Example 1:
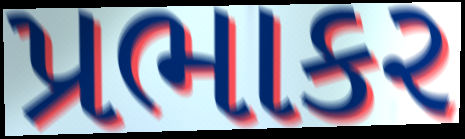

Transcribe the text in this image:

પ્રભાકર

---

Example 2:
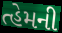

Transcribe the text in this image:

ત્હેમની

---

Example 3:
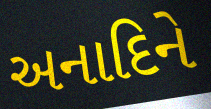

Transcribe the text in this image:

અનાદિને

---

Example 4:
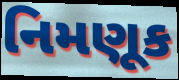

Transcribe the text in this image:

નિમણૂક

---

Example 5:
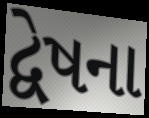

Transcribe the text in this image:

દ્વેષના